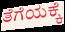
ತೆಗೆಯಕ್ಕೆ